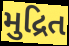
મુદ્રિત